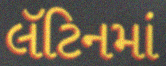
લૅટિનમાં